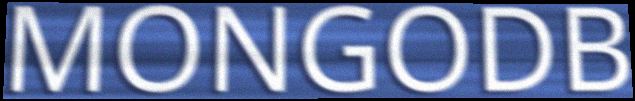
MONGODB